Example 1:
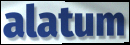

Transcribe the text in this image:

alatum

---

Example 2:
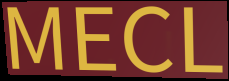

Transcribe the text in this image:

MECL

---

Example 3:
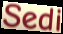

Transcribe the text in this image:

Sedi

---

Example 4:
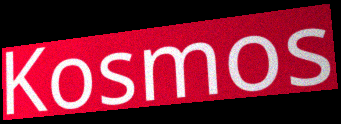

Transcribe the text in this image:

Kosmos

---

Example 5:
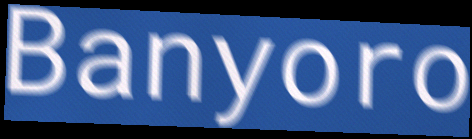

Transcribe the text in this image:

Banyoro